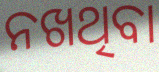
ନଖଥିବା